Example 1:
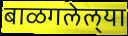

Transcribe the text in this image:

बाळगलेल्या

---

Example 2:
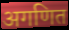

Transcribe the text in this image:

अगणित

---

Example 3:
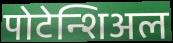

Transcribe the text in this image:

पोटेन्शिअल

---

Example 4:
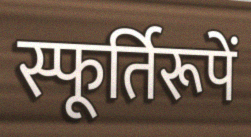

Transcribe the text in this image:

स्फूर्तिरूपें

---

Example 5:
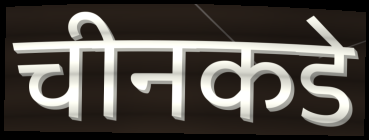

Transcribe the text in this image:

चीनकडे